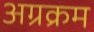
अग्रक्रम